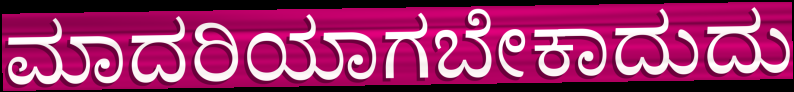
ಮಾದರಿಯಾಗಬೇಕಾದುದು